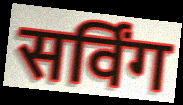
सर्विंग